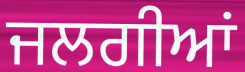
ਜਲਗੀਆਂ